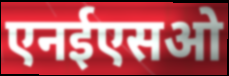
एनईएसओ